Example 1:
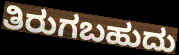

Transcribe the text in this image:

ತಿರುಗಬಹುದು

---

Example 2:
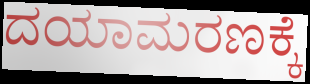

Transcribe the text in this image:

ದಯಾಮರಣಕ್ಕೆ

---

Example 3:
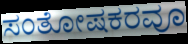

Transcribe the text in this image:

ಸಂತೋಷಕರವೂ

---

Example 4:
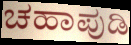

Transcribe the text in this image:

ಚಹಾಪುಡಿ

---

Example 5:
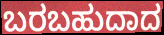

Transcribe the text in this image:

ಬರಬಹುದಾದ